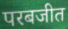
परबजीत